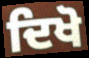
ਦਿਖੋ